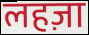
लहज़ा